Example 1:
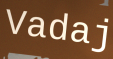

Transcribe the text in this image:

Vadaj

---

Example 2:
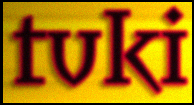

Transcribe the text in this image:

tuki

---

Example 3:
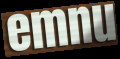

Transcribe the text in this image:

emnu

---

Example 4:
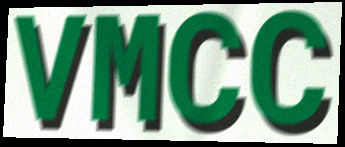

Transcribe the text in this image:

VMCC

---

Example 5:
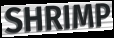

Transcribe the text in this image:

SHRIMP